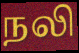
நலி